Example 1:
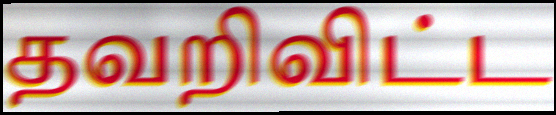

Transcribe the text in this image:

தவறிவிட்ட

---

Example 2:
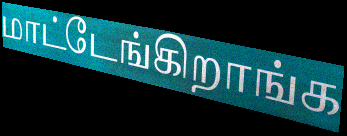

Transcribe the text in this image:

மாட்டேங்கிறாங்க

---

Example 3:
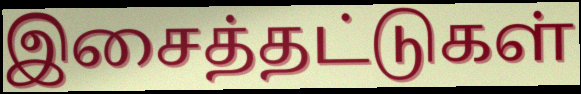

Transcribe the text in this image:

இசைத்தட்டுகள்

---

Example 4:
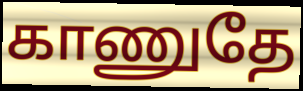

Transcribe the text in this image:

காணுதே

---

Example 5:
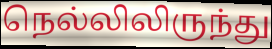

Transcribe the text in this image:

நெல்லிலிருந்து